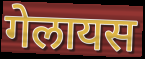
गेलायस